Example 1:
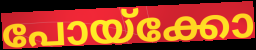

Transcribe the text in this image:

പോയ്ക്കോ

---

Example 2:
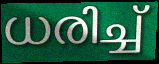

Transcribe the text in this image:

ധരിച്ച്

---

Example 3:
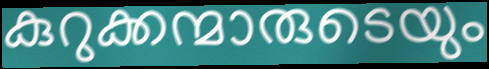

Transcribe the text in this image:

കുറുക്കന്മാരുടെയും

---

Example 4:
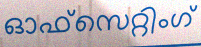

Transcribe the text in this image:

ഓഫ്സെറ്റിംഗ്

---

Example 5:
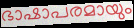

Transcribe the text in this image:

ഭാഷാപരമായും